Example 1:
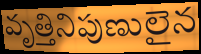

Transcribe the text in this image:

వృత్తినిపుణులైన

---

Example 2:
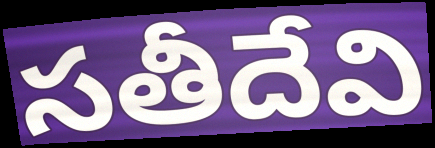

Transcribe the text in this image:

సతీదేవి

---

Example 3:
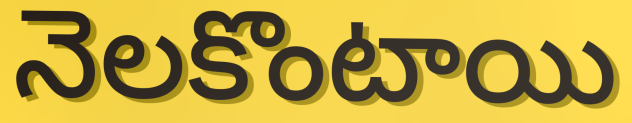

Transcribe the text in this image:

నెలకొంటాయి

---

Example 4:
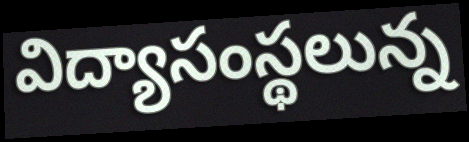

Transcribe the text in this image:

విద్యాసంస్థలున్న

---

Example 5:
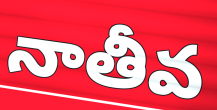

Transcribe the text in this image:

నాతీవ